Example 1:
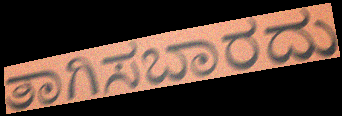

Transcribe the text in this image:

ತಾಗಿಸಬಾರದು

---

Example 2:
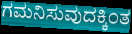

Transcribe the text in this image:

ಗಮನಿಸುವುದಕ್ಕಿಂತ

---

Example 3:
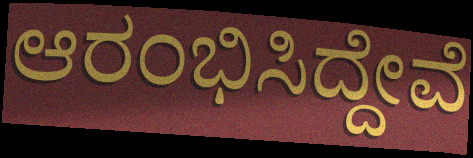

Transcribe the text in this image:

ಆರಂಭಿಸಿದ್ದೇವೆ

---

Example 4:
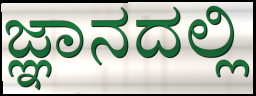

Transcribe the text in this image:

ಜ್ಞಾನದಲ್ಲಿ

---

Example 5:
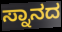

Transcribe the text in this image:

ಸ್ನಾನದ